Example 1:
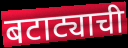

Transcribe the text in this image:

बटाट्याची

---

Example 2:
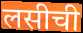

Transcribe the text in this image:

लसीची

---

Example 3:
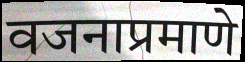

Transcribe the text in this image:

वजनाप्रमाणे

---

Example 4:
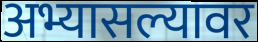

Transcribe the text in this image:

अभ्यासल्यावर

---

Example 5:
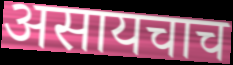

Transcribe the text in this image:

असायचाच